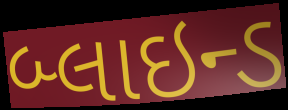
બ્લાઇન્ડ